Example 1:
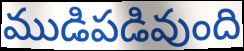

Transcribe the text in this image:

ముడిపడివుంది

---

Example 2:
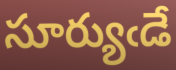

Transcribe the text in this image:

సూర్యుఁడే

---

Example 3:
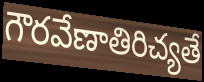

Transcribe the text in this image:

గౌరవేణాతిరిచ్యతే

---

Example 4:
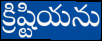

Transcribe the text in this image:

క్రిష్టియను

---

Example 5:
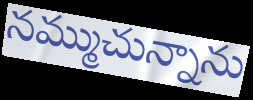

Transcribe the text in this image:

నమ్ముచున్నాను